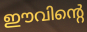
ഈവിന്റെ